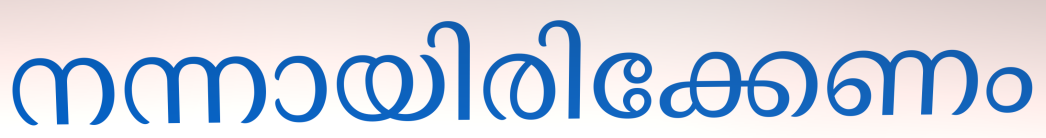
നന്നായിരിക്കേണം